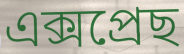
এক্সপ্ৰেছ